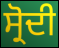
ਸ੍ਰੋਦੀ